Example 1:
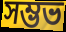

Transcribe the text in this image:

সম্ভভ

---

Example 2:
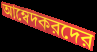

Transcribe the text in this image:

আম্বেদকরদের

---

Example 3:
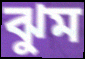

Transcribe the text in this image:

ঝুম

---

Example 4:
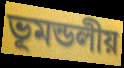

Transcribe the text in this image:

ভূমন্ডলীয়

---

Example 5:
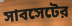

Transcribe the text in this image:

সাবসেটের